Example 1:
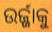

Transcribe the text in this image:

ଉର୍ଜ୍ଜାକୁ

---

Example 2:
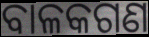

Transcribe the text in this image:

ବାଳକଗଣ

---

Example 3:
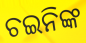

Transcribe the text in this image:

ଚଇନିଙ୍କ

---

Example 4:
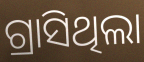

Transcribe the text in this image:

ଗ୍ରାସିଥିଲା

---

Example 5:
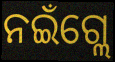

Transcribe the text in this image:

ନଇଁଗ୍ଲେ